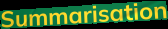
Summarisation